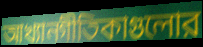
আখ্যানগীতিকাগুলোর